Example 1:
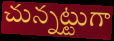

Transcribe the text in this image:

చున్నట్టుగా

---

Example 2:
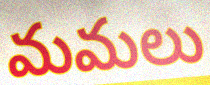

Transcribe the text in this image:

మమలు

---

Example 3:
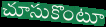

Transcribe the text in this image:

చూసుకొంటూ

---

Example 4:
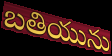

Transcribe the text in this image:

బతియును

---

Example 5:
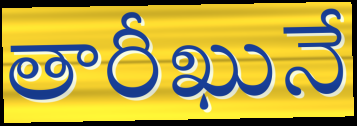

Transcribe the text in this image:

తారీఖునే